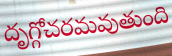
దృగ్గోచరమవుతుంది